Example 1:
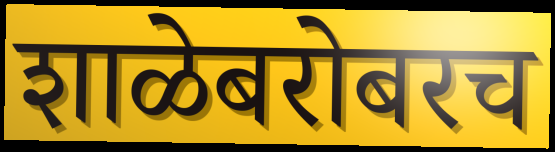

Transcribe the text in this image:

शाळेबरोबरच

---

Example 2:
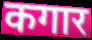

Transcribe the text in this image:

कगार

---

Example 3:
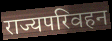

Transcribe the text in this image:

राज्यपरिवहन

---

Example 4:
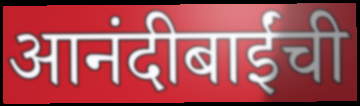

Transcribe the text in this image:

आनंदीबाईंची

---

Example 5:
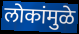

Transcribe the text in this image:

लोकांमुळे